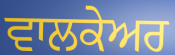
ਵਾਲਕੇਅਰ